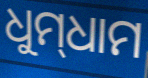
ଧୁମ୍‌ଧାମ